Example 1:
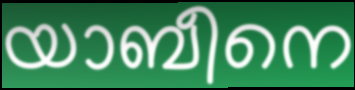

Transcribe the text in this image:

യാബീനെ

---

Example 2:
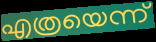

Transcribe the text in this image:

എത്രയെന്ന്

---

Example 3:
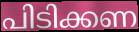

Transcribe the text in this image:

പിടിക്കണ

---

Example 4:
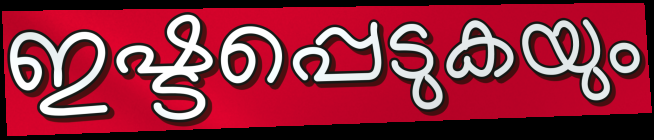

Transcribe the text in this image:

ഇഷ്ടപ്പെടുകയും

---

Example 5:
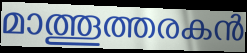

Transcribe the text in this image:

മാത്തൂത്തരകൻ